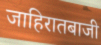
जाहिरातबाजी